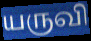
யருவி